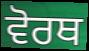
ਵੋਰਥ